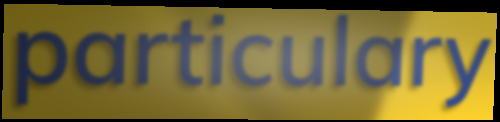
particulary